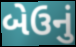
બેઉનું